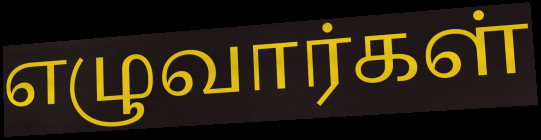
எழுவார்கள்